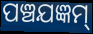
ପଞ୍ଚଯଜ୍ଞମ୍